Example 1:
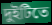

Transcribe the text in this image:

দুইটিতে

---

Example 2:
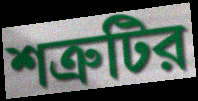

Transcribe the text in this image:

শত্রুটির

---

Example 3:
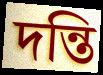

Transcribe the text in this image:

দন্তি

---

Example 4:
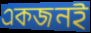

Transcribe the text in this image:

একজনই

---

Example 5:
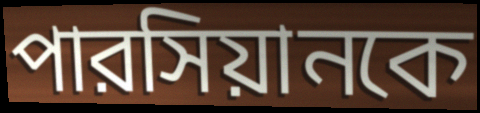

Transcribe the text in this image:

পারসিয়ানকে